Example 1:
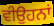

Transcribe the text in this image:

ਵੀਉਹਨਾਂ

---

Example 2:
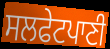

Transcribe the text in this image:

ਸਲਫੇਟਪਾਣੀ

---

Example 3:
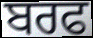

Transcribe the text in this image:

ਬਰਫ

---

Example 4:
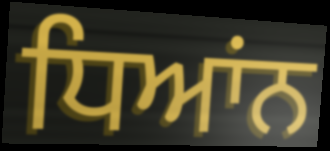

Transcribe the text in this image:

ਧਿਆਂਨ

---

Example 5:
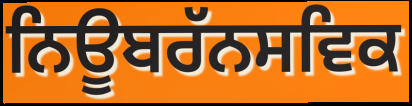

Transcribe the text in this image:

ਨਿਊਬਰੱਨਸਵਿਕ